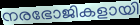
നരഭോജികളായി